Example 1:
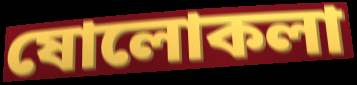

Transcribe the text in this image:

ষোলোকলা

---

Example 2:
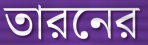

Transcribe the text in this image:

তারনের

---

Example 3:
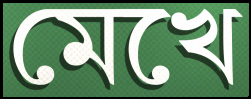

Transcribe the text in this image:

মেখে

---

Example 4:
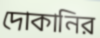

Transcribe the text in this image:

দোকানির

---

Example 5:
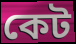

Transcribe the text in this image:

কেট